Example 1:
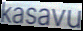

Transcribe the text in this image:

kasavu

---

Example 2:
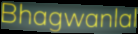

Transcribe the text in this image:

Bhagwanlal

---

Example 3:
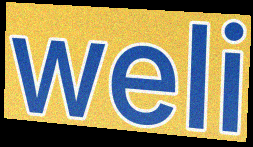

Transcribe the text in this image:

weli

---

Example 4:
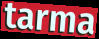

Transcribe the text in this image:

tarma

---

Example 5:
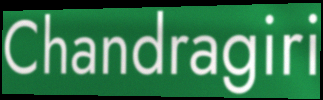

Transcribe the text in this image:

Chandragiri